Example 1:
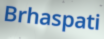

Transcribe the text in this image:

Brhaspati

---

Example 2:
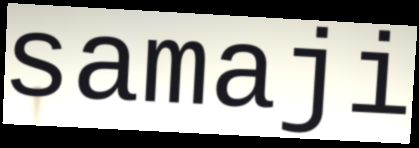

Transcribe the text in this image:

samaji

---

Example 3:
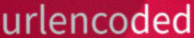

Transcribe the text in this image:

urlencoded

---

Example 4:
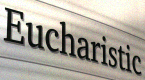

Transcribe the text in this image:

Eucharistic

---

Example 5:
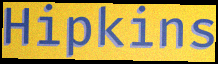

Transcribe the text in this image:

Hipkins